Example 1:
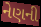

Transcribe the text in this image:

નેણની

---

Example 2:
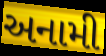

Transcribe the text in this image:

અનામી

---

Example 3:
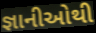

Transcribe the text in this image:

જ્ઞાનીઓથી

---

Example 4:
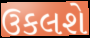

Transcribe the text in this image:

ઉકલશે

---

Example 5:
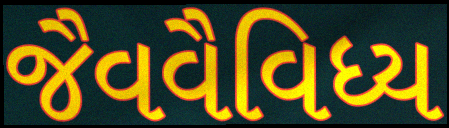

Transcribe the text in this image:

જૈવવૈવિધ્ય